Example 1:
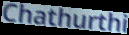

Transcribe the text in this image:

Chathurthi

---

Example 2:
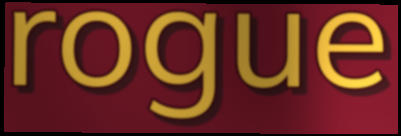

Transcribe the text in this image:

rogue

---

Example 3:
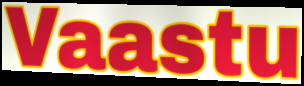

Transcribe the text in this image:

Vaastu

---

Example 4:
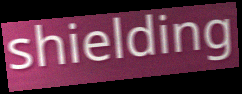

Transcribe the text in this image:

shielding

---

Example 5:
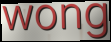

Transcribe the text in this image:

wong